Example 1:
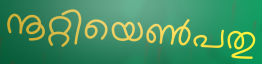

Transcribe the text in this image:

നൂറ്റിയെൺപതു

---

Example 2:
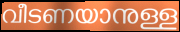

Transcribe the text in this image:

വീടണയാനുള്ള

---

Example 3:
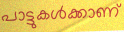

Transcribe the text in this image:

പാട്ടുകൾക്കാണ്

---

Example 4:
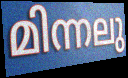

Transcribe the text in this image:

മിന്നലു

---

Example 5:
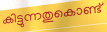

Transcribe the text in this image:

കിട്ടുന്നതുകൊണ്ട്